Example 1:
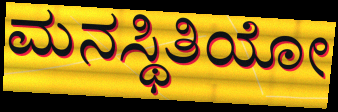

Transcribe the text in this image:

ಮನಸ್ಥಿತಿಯೋ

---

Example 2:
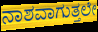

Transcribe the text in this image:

ನಾಶವಾಗುತ್ತಲೇ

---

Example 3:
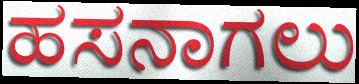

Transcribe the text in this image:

ಹಸನಾಗಲು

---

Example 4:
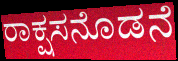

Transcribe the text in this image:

ರಾಕ್ಷಸನೊಡನೆ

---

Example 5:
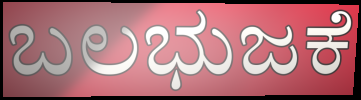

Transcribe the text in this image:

ಬಲಭುಜಕೆ